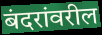
बंदरांवरील